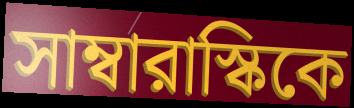
সাম্বারাস্কিকে